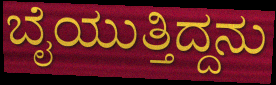
ಬೈಯುತ್ತಿದ್ದನು